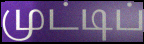
முட்டிப்